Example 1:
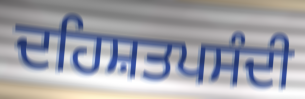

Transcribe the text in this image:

ਦਹਿਸ਼ਤਪਸੰਦੀ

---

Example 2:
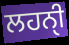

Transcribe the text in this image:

ਲਹਨੑੀ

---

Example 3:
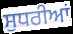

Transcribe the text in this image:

ਸੁਧਰੀਆਂ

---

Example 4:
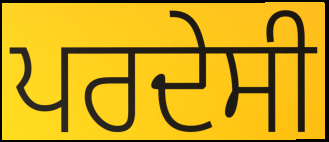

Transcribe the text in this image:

ਪਰਦੇਸੀ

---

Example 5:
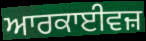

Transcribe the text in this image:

ਆਰਕਾਈਵਜ਼